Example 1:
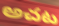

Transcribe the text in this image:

అచట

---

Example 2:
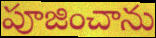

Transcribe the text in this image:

పూజించాను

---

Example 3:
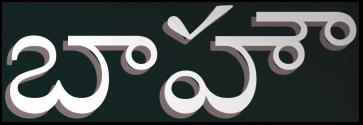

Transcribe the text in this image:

బాహౌ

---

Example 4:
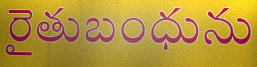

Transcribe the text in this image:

రైతుబంధును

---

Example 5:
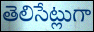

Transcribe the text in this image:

తెలిసేట్లుగా